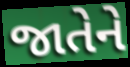
જાતેને